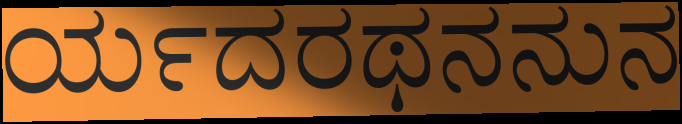
ರ್ಯದರಥನನುನ